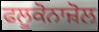
ਫਲੂਕੋਨਾਜ਼ੋਲ